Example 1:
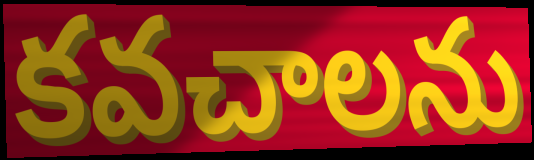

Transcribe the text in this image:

కవచాలను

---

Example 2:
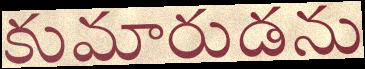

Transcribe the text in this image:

కుమారుడను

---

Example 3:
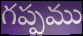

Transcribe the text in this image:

గప్పము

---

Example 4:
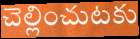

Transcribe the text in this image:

చెల్లించుటకు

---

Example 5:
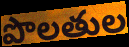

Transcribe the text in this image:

పొలతుల